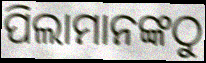
ପିଲାମାନଙ୍କଠୁ